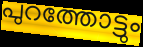
പുറത്തോട്ടും